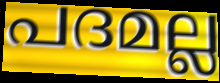
പദമല്ല